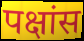
पक्षांस